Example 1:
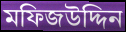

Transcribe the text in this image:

মফিজউদ্দিন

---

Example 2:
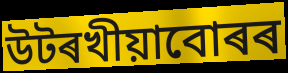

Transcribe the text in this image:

উটৰখীয়াবোৰৰ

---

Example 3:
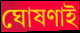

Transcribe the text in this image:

ঘোষণাই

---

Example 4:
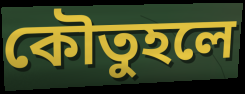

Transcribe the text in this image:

কৌতুহলে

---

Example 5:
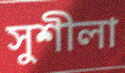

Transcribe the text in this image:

সুশীলা